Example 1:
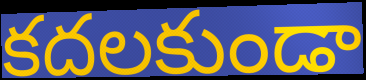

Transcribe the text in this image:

కదలకుండా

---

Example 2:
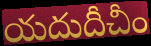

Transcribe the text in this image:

యదుదీచీం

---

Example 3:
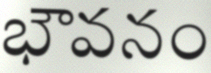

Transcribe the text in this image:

భౌవనం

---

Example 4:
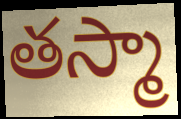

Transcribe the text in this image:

తస్మా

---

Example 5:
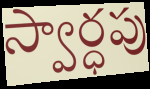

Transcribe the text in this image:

స్వార్ధపు